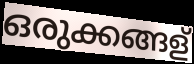
ഒരുക്കങ്ങള്